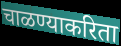
चाळण्याकरिता